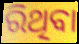
ରିଥିବା